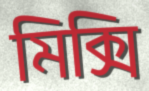
মিক্সি